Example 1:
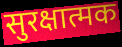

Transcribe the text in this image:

सुरक्षात्मक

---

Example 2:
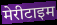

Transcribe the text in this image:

मेरीटाइम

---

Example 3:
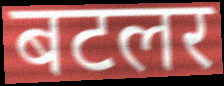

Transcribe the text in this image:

बटलर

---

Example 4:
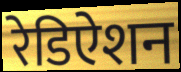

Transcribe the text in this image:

रेडिऐशन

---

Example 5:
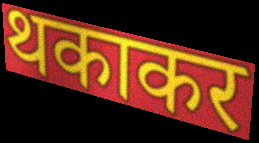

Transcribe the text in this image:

थकाकर